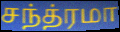
சந்த்ரமா